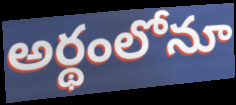
అర్థంలోనూ